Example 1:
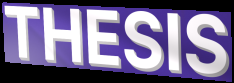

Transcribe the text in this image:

THESIS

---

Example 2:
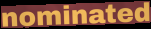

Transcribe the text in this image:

nominated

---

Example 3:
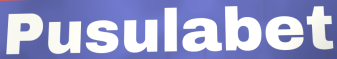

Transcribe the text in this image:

Pusulabet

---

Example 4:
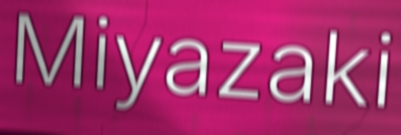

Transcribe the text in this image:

Miyazaki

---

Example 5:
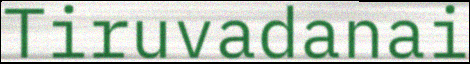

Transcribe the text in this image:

Tiruvadanai